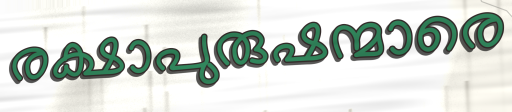
രക്ഷാപുരുഷന്മാരെ